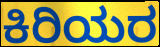
ಕಿರಿಯರ